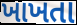
ખાખતા